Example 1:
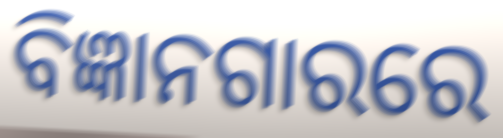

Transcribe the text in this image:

ବିଜ୍ଞାନଗାରରେ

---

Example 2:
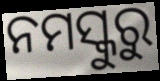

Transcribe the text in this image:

ନମସ୍କୁରୁ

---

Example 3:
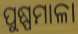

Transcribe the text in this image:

ପୁଷ୍ପମାଳା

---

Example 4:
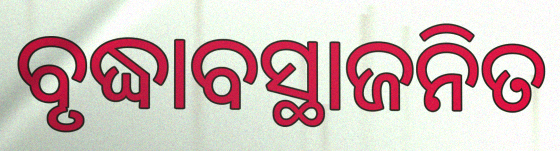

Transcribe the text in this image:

ବୃଦ୍ଧାବସ୍ଥାଜନିତ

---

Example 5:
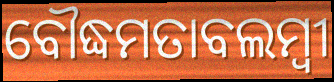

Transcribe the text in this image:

ବୌଦ୍ଧମତାବଲମ୍ବୀ